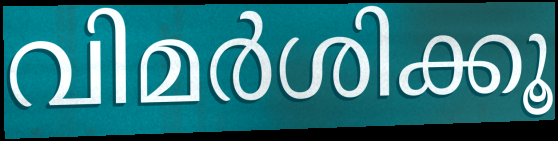
വിമർശിക്കൂ